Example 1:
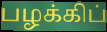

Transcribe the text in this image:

பழக்கிப்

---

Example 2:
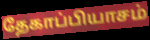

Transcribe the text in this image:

தேகாப்பியாசம்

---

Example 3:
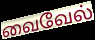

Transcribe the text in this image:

வைவேல்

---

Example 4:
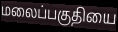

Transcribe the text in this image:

மலைப்பகுதியை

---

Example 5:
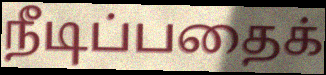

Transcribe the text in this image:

நீடிப்பதைக்